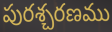
పురశ్చరణము